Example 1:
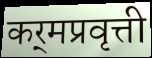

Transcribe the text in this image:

कर्मप्रवृत्ती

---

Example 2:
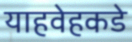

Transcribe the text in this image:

याहवेहकडे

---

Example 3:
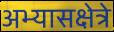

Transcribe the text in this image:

अभ्यासक्षेत्रे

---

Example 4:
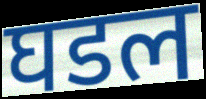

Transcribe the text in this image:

घडल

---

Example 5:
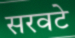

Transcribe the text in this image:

सरवटे